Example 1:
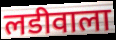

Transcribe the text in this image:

लडीवाला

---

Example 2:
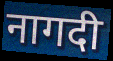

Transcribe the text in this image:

नागदी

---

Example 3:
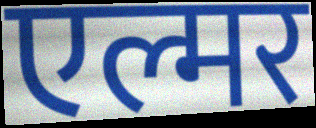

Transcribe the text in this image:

एल्मर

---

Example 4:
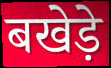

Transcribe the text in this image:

बखेड़े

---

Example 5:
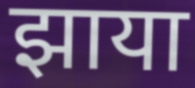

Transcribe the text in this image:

झाया